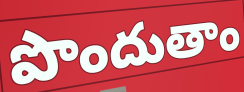
పొందుతాం